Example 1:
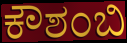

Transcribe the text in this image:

ಕೌಶಂಬಿ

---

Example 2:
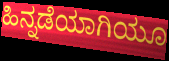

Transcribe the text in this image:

ಹಿನ್ನಡೆಯಾಗಿಯೂ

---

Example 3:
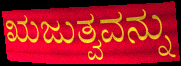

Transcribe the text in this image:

ಋಜುತ್ವವನ್ನು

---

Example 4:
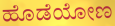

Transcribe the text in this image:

ಹೊಡೆಯೋಣ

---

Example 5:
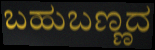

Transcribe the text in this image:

ಬಹುಬಣ್ಣದ